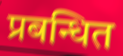
प्रबन्धित